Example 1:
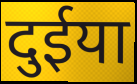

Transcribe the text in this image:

दुईया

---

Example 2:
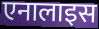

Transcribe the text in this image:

एनालाइस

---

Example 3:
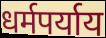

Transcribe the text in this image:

धर्मपर्याय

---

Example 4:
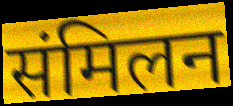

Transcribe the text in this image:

संमिलन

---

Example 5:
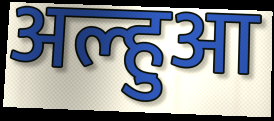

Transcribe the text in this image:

अल्हुआ